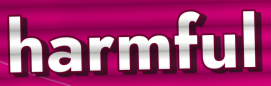
harmful